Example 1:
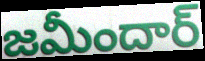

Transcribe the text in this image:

జమీందార్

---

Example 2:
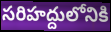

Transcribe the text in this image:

సరిహద్దులోనికి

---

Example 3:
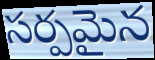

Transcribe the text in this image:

సర్పమైన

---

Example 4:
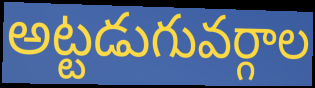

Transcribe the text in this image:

అట్టడుగువర్గాల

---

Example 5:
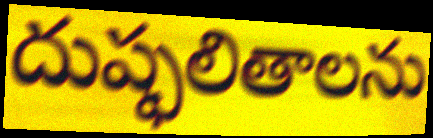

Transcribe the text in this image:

దుష్ఫలితాలను